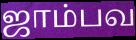
ஜாம்பவ